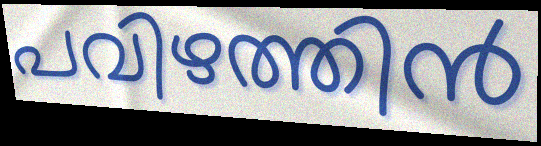
പവിഴത്തിൻ